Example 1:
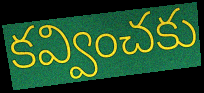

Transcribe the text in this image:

కవ్వించకు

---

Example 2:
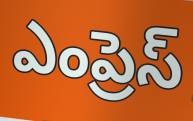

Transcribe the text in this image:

ఎంప్రెస్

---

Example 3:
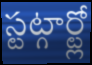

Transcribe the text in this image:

స్టట్గార్ట్లో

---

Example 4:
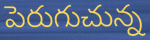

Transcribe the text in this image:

పెరుగుచున్న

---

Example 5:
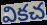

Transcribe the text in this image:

వికచ